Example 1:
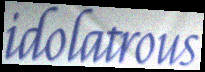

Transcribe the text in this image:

idolatrous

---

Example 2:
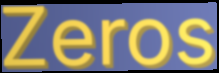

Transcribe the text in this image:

Zeros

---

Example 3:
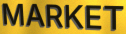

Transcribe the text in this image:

MARKET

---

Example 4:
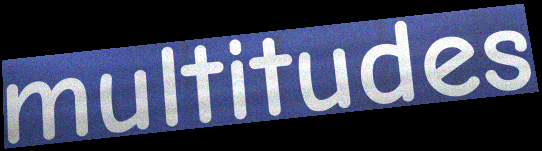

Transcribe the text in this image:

multitudes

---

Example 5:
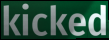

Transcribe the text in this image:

kicked